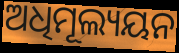
ଅଧିମୂଲ୍ୟୟନ